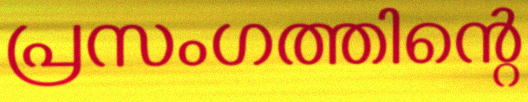
പ്രസംഗത്തിന്റെ